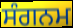
ਸੰਗਨਮ